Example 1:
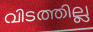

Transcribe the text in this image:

വിടത്തില്ല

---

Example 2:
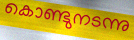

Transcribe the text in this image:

കൊണ്ടുനടന്നു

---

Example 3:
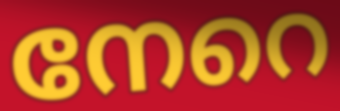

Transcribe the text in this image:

നേറെ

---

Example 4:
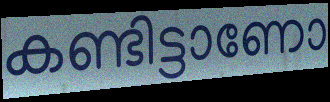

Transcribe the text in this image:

കണ്ടിട്ടാണോ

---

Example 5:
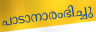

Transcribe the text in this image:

പാടാനാരംഭിച്ചു